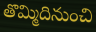
తొమ్మిదినుంచి